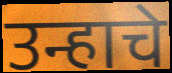
उन्हाचे